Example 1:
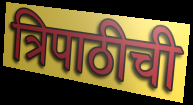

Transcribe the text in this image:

त्रिपाठीची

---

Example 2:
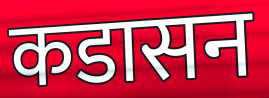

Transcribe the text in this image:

कडासन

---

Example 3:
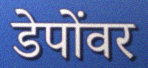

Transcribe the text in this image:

डेपोंवर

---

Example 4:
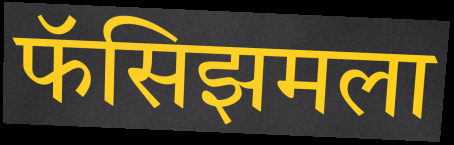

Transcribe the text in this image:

फॅसिझमला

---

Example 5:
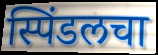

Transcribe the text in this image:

स्पिंडलचा